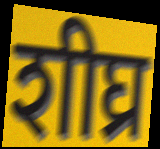
शीघ्र